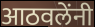
आठवलेंनी